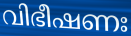
വിഭീഷണഃ